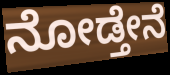
ನೋಡ್ತೇನೆ